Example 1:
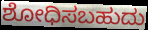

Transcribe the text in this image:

ಶೋಧಿಸಬಹುದು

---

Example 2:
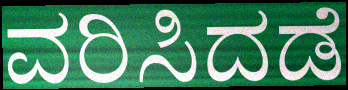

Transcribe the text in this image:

ವರಿಸಿದಡೆ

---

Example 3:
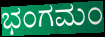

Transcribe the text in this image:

ಭಂಗಮಂ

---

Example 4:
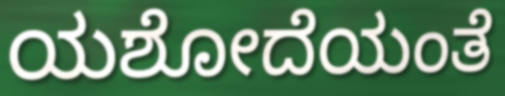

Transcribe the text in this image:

ಯಶೋದೆಯಂತೆ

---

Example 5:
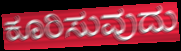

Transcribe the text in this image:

ಕೂರಿಸುವುದು